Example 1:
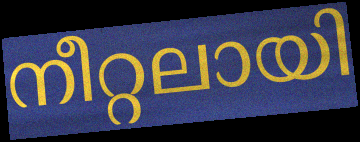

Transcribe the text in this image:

നീറ്റലായി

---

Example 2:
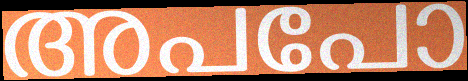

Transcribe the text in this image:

അപപോ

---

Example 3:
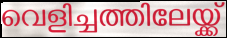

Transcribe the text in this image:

വെളിച്ചത്തിലേയ്ക്ക്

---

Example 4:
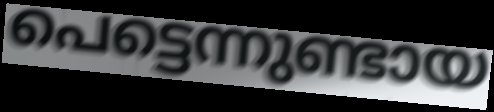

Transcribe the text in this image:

പെട്ടെന്നുണ്ടായ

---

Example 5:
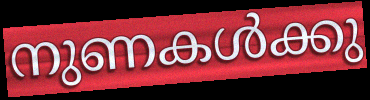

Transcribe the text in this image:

നുണകൾക്കു